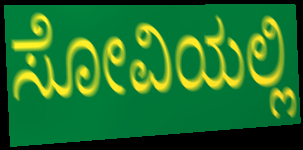
ಸೋವಿಯಲ್ಲಿ